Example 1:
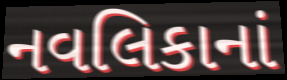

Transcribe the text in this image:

નવલિકાનાં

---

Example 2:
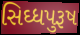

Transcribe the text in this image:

સિઘ્ધપુરૂષ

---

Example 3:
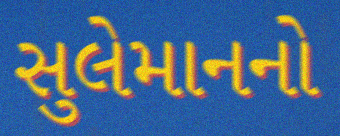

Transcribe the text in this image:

સુલેમાનનો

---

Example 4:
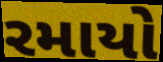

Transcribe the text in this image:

રમાયો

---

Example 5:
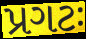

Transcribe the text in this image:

પ્રગટઃ